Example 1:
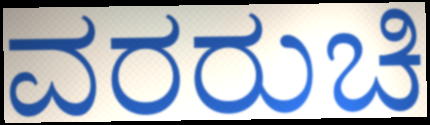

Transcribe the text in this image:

ವರರುಚಿ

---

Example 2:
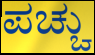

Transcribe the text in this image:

ಪಚ್ಚು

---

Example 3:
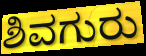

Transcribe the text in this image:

ಶಿವಗುರು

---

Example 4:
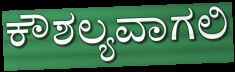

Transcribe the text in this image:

ಕೌಶಲ್ಯವಾಗಲಿ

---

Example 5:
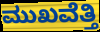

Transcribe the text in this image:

ಮುಖವೆತ್ತಿ